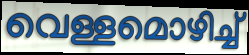
വെള്ളമൊഴിച്ച്